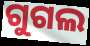
ଗୁଗଲ